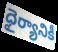
ధైర్యానికీ